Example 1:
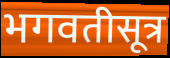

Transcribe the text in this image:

भगवतीसूत्र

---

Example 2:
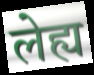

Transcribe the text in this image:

लेह्य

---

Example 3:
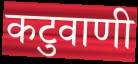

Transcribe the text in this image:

कटुवाणी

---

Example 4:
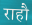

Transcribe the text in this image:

राहौ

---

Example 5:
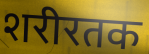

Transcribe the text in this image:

शरीरतक